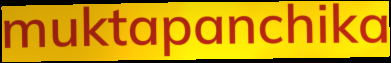
muktapanchika